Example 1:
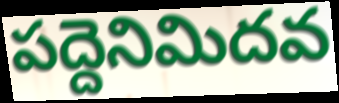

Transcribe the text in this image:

పద్దెనిమిదవ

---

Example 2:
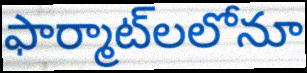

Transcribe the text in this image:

ఫార్మాట్‌లలోనూ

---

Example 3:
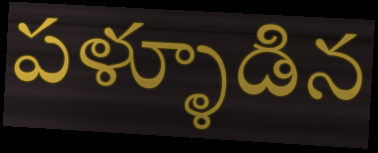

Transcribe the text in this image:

పళ్ళూడిన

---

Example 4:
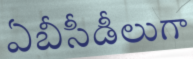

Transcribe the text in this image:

ఏబీసీడీలుగా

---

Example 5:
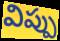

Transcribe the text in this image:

విప్పు